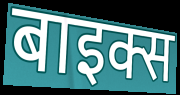
बाइक्स